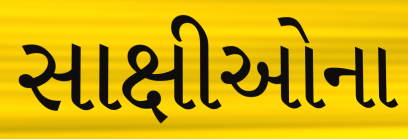
સાક્ષીઓના